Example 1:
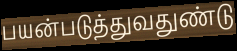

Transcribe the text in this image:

பயன்படுத்துவதுண்டு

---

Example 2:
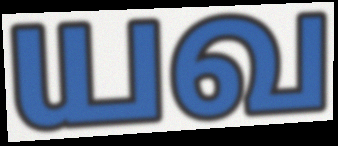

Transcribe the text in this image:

யவ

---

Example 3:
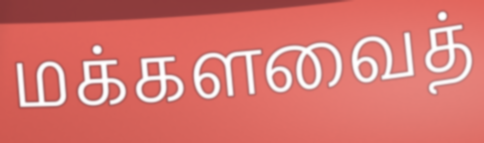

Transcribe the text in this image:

மக்களவைத்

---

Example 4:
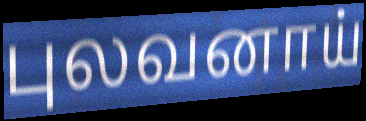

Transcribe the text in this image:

புலவனாய்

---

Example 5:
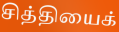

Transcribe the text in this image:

சித்தியைக்